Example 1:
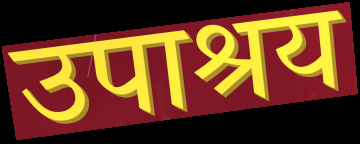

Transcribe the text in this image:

उपाश्रय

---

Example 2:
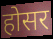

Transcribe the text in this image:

होसर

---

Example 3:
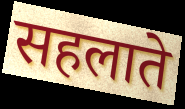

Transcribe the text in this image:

सहलाते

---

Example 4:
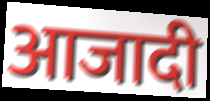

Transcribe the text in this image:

आजादी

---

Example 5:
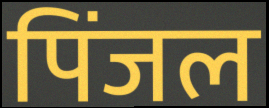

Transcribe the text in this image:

पिंजल